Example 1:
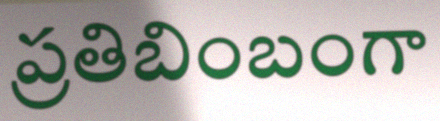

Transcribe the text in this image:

ప్రతిబింబంగా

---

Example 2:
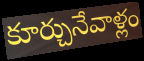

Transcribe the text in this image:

కూర్చునేవాళ్లం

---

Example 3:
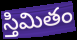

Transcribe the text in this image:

స్తిమితం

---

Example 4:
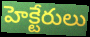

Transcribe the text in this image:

హెక్టేరులు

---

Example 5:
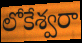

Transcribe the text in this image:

లోకేశ్వరా